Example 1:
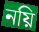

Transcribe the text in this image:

নয়ি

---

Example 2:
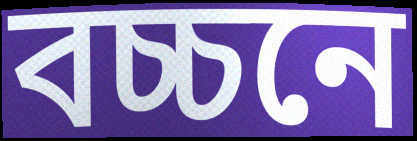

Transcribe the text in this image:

বচ্চনে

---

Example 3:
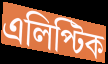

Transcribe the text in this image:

এলিপ্টিক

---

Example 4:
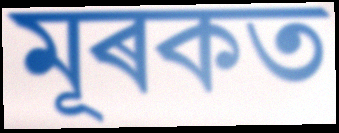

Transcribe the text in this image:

মূৰকত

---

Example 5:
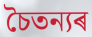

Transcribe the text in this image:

চৈতন্যৰ